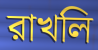
রাখলি